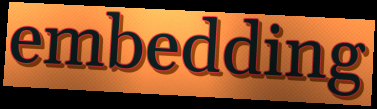
embedding